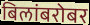
बिलांबरोबर